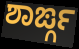
ಶಾರ್ಙ್ಗ